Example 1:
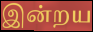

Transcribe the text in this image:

இன்றய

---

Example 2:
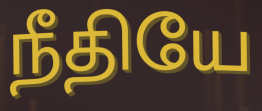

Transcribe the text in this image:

நீதியே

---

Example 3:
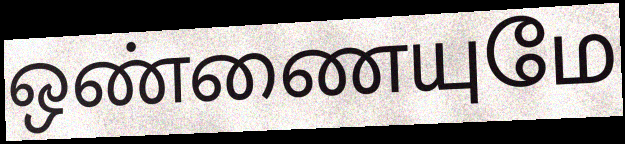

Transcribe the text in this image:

ஒண்ணையுமே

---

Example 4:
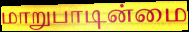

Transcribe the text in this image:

மாறுபாடின்மை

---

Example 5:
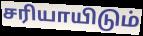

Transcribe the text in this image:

சரியாயிடும்